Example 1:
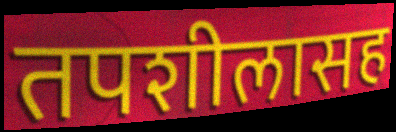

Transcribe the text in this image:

तपशीलासह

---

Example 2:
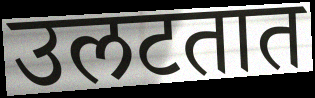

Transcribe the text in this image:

उलटतात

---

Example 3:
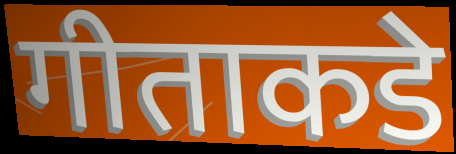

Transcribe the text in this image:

गीताकडे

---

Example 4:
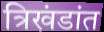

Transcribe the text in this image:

त्रिखंडांत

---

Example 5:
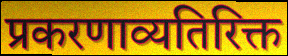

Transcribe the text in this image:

प्रकरणाव्यतिरिक्त